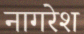
नागरेश